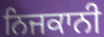
ਨਿਜਕਾਨੀ